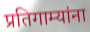
प्रतिगाम्यांना